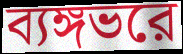
ব্যঙ্গভরে